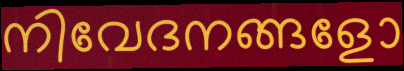
നിവേദനങ്ങളോ